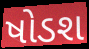
ષોડશ